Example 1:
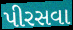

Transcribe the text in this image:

પીરસવા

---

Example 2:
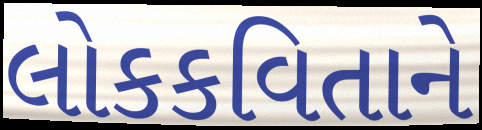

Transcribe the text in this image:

લોકકવિતાને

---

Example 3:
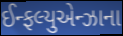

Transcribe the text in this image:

ઈન્ફલ્યુએન્ઝાના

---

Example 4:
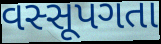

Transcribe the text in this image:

વસ્સૂપગતા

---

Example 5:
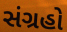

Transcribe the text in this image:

સંગ્રહો